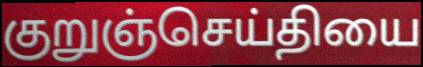
குறுஞ்செய்தியை